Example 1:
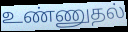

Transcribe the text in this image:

உண்ணுதல்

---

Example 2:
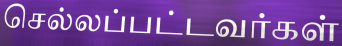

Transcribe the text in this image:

செல்லப்பட்டவர்கள்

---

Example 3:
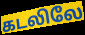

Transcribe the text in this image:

கடலிலே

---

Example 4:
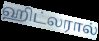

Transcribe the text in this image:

ஹிட்லரால்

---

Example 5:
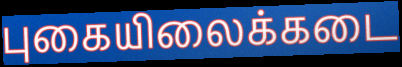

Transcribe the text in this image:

புகையிலைக்கடை